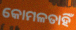
କୋମଳତାହିଁ